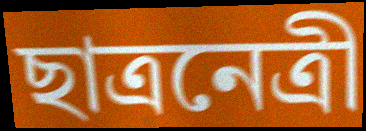
ছাত্রনেত্রী